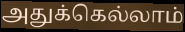
அதுக்கெல்லாம்